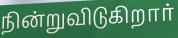
நின்றுவிடுகிறார்